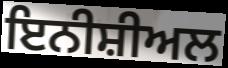
ਇਨੀਸ਼ੀਅਲ